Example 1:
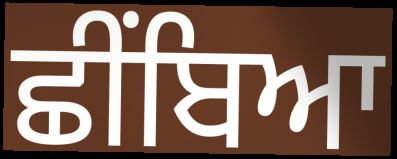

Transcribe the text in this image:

ਛੀਂਬਿਆ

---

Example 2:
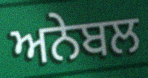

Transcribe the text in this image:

ਅਨੇਬਲ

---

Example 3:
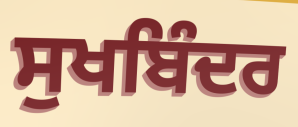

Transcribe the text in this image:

ਸੁਖਬਿੰਦਰ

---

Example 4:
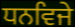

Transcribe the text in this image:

ਧਨਵਿਜੇ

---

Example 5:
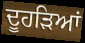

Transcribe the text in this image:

ਦੂਹੜਿਆਂ